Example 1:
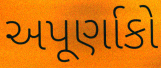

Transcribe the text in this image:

અપૂર્ણાકો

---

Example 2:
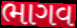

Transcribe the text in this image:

ભાગવ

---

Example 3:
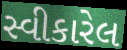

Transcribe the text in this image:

સ્વીકારેલ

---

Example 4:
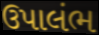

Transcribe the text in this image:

ઉપાલંભ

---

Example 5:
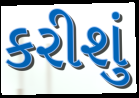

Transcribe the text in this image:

કરીશું